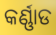
କର୍ଣ୍ଣାଡ